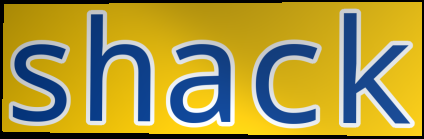
shack